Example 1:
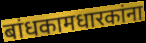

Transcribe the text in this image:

बांधकामधारकांना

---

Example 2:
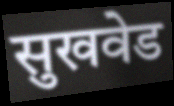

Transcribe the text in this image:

सुखवेड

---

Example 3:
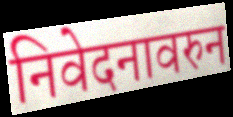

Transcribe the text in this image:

निवेदनावरुन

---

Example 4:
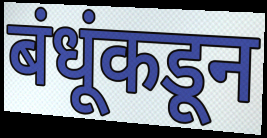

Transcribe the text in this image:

बंधूंकडून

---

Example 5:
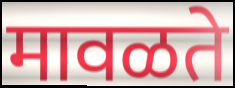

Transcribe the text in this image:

मावळते